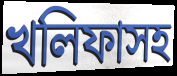
খলিফাসহ